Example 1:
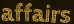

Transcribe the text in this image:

affairs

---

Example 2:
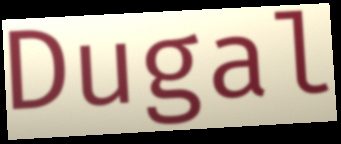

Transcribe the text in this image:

Dugal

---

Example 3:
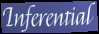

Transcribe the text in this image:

Inferential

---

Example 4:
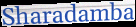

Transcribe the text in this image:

Sharadamba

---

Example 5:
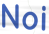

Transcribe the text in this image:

Noi